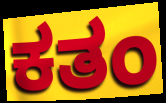
ಕತಂ